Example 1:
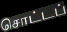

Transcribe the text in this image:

சொட்டப்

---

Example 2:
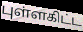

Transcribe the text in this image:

புள்ளகிட்ட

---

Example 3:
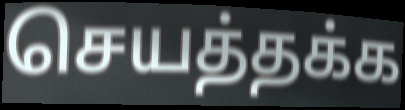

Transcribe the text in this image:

செயத்தக்க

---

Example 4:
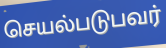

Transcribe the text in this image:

செயல்படுபவர்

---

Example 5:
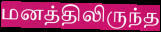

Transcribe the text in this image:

மனத்திலிருந்த